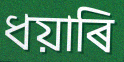
ধয়াৰি